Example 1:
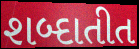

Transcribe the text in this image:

શબ્દાતીત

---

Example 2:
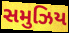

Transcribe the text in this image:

સમુઝિય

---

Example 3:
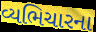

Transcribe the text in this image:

વ્યભિચારના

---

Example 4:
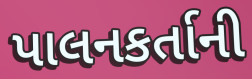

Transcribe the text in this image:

પાલનકર્તાની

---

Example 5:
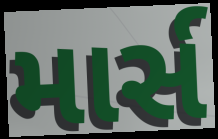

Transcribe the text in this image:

માર્સ